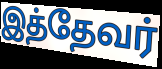
இத்தேவர்